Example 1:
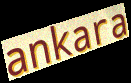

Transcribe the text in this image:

ankara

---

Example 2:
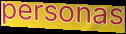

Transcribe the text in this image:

personas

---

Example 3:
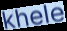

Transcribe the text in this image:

khele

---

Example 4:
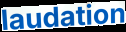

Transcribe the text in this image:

laudation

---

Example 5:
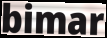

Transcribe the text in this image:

bimar